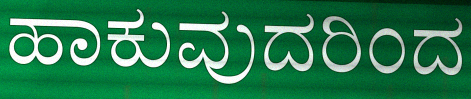
ಹಾಕುವುದರಿಂದ